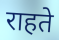
राहते